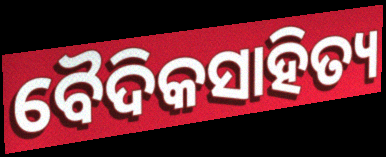
ବୈଦିକସାହିତ୍ୟ